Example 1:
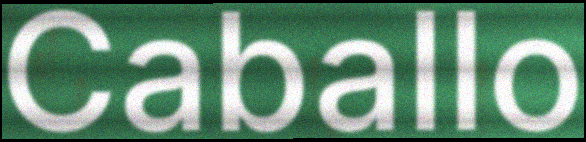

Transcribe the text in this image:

Caballo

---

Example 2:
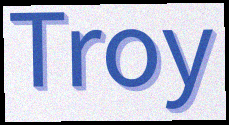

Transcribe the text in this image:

Troy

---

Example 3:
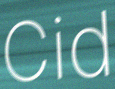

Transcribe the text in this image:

Cid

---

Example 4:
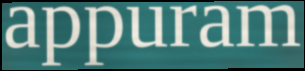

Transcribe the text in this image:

appuram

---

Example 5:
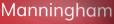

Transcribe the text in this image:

Manningham